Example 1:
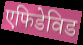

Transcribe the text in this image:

एफिडेविड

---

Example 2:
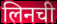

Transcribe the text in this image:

लिनची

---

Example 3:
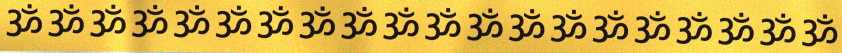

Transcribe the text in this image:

ॐॐॐॐॐॐॐॐॐॐॐॐॐॐॐॐॐॐॐॐ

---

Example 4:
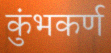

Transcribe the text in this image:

कुंभकर्ण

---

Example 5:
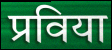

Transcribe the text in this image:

प्रविया